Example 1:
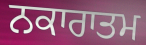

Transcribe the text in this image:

ਨਕਾਰਾਤਮ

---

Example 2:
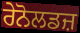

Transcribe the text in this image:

ਰੇਨੋਲਡਜ਼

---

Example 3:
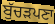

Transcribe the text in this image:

ਬੁੱਚੜਪਣਾ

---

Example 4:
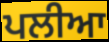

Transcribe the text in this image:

ਪਲੀਆ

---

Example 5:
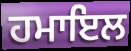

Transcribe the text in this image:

ਹਮਾਇਲ